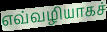
எவ்வழியாகச்